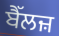
ਬੈੱਲਜ਼